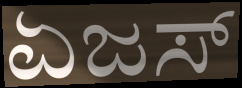
ಏಜಸ್